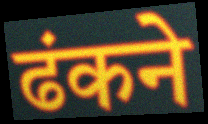
ढंकने